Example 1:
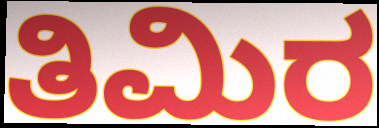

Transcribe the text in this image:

ತಿಮಿರ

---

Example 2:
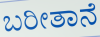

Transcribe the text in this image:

ಬರೀತಾನೆ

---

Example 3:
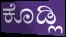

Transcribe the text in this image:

ಕೊಡ್ಲಿ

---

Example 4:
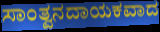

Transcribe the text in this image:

ಸಾಂತ್ವನದಾಯಕವಾದ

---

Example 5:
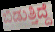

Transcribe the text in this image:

ಬಿಡುತ್ತಿದ್ದೆ